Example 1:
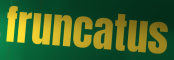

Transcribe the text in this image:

fruncatus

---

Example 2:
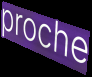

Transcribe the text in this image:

proche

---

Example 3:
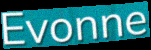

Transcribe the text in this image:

Evonne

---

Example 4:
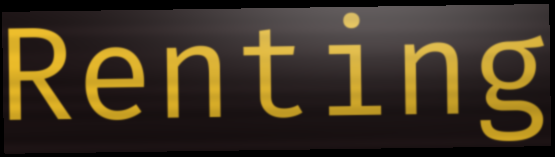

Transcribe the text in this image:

Renting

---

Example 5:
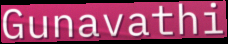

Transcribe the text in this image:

Gunavathi